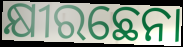
କ୍ଷୀରଛେନା